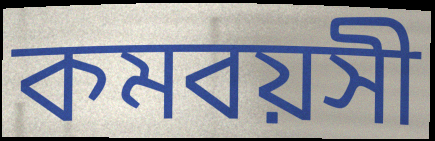
কমবয়সী